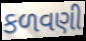
કળવણી